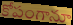
కోపంగానూ